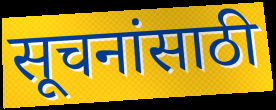
सूचनांसाठी